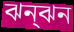
ঝন্ঝন